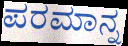
ಪರಮಾನ್ನ